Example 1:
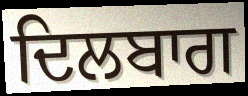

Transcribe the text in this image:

ਦਿਲਬਾਗ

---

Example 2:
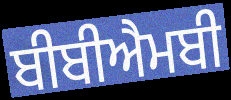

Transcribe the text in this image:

ਬੀਬੀਐਮਬੀ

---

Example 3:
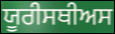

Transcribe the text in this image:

ਯੂਰੀਸਥੀਅਸ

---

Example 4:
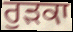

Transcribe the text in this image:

ਰੁੜਕਾ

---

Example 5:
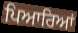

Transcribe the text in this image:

ਪਿਆਰਿਆਂ